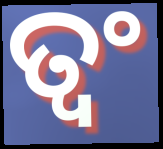
ତ୍ୱଂ